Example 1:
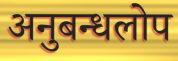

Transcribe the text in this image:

अनुबन्धलोप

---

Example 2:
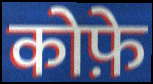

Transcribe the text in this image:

कोफ़े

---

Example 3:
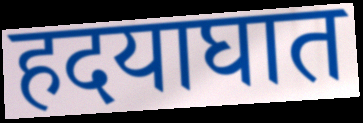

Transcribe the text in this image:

हदयाघात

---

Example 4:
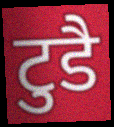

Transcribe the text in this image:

टुडै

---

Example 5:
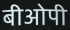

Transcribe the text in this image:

बीओपी